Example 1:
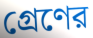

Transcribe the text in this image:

গ্রেণের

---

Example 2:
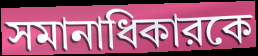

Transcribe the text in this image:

সমানাধিকারকে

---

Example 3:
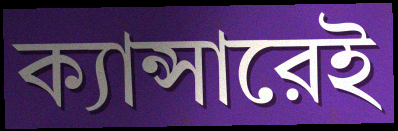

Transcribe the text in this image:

ক্যান্সারেই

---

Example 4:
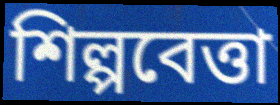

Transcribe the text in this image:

শিল্পবেত্তা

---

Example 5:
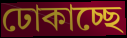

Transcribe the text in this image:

ঢোকাচ্ছে